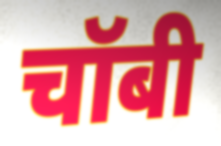
चॉबी